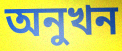
অনুখন